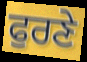
ਫੁਰਣੇ